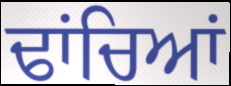
ਢਾਂਚਿਆਂ